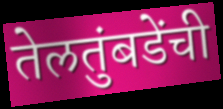
तेलतुंबडेंची